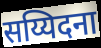
सय्यिदना